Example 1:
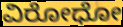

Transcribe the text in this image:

ವಿರೋಧೋ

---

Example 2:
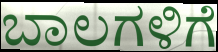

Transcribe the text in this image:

ಬಾಲಗಳಿಗೆ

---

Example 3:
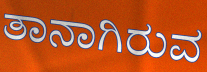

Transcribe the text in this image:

ತಾನಾಗಿರುವ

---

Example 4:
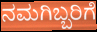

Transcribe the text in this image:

ನಮಗಿಬ್ಬರಿಗೆ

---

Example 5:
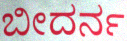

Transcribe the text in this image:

ಬೀದರ್ನ